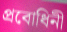
প্রবোধিনী